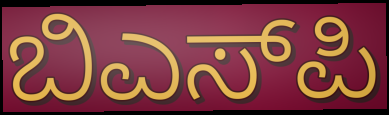
ಬಿಎಸ್‌ಪಿ